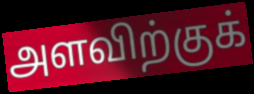
அளவிற்குக்